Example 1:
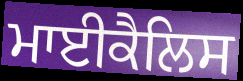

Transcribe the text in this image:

ਮਾਈਕੈਲਿਸ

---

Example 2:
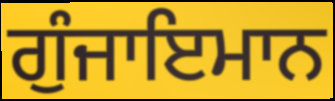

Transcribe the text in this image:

ਗੁੰਜਾਇਮਾਨ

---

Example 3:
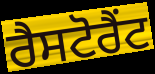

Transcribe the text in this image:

ਰੈਸਟੋਰੈਂਟ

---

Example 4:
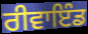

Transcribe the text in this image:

ਰੀਵਾਇੰਡ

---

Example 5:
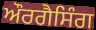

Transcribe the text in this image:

ਔਰਗੈਸਿੰਗ